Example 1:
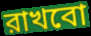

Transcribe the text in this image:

রাখবো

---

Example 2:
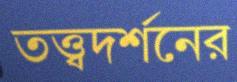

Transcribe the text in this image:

তত্ত্বদর্শনের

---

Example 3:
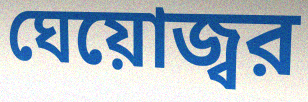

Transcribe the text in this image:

ঘেয়োজ্বর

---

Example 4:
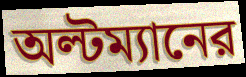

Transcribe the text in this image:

অল্টম্যানের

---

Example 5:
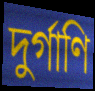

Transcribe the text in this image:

দুর্গাণি